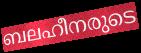
ബലഹീനരുടെ